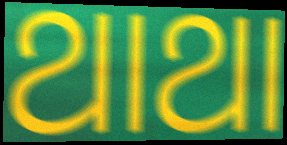
ଥାଥା